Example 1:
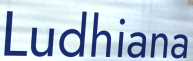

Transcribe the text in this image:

Ludhiana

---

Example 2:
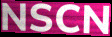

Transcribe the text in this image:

NSCN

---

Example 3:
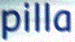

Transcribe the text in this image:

pilla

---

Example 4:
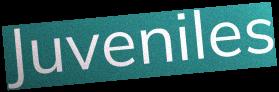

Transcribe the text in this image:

Juveniles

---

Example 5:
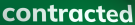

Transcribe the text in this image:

contracted